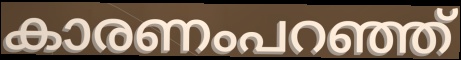
കാരണംപറഞ്ഞ്